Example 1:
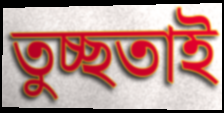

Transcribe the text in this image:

তুচ্ছতাই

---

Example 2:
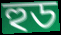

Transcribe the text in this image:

হুড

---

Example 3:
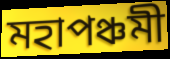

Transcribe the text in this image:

মহাপঞ্চমী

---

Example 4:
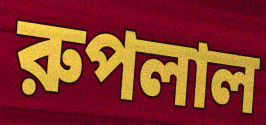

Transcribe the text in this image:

রুপলাল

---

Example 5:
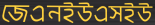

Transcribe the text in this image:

জেএনইউএসইউ